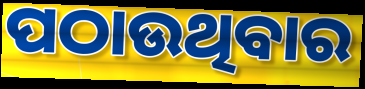
ପଠାଉଥିବାର